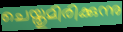
ചെയ്തുമിരിക്കുന്നു